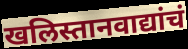
खलिस्तानवाद्यांचं